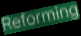
Reforming